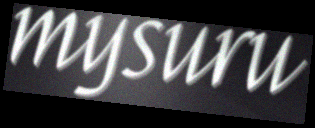
mysuru